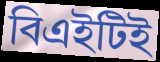
বিএইটিই